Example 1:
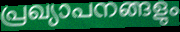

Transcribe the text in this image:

പ്രഖ്യാപനങ്ങളും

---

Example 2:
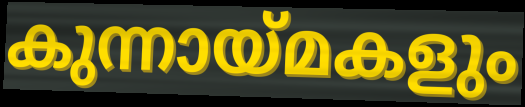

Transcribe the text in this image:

കുന്നായ്മകളും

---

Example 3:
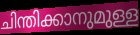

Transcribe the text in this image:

ചിന്തിക്കാനുമുള്ള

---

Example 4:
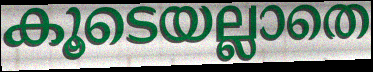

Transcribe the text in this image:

കൂടെയല്ലാതെ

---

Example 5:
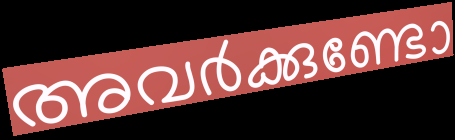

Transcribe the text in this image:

അവർക്കുണ്ടോ